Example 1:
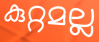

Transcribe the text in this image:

കുറ്റമല്ല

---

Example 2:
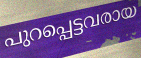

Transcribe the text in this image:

പുറപ്പെട്ടവരായ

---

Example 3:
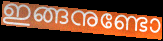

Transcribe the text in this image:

ഇങ്ങനുണ്ടോ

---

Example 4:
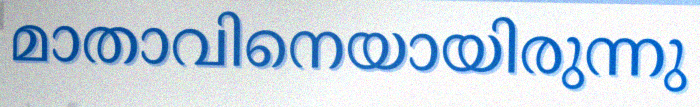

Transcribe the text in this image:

മാതാവിനെയായിരുന്നു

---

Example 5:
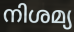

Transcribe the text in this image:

നിശമ്യ